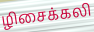
ழிசைக்கலி